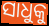
ସାଧୁକୁ